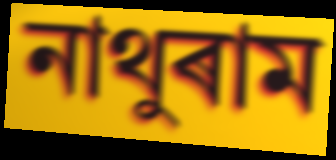
নাথুৰাম